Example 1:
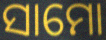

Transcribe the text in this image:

ସାମୋ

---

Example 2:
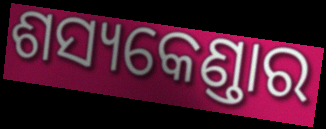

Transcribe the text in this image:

ଶସ୍ୟକେଣ୍ଡାର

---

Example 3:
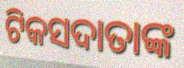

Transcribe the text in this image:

ଟିକସଦାତାଙ୍କ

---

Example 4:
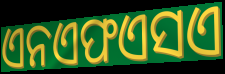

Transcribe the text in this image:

ଏନଏଫଏସଏ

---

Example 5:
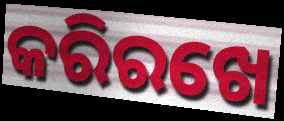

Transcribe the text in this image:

କରିରଖେ